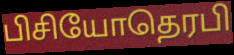
பிசியோதெரபி